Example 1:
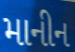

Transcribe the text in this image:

માનીન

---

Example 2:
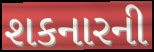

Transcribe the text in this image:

શકનારની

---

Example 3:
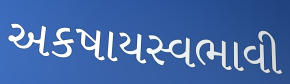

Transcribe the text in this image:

અકષાયસ્વભાવી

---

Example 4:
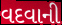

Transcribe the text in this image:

વદવાની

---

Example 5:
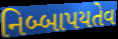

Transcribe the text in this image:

નિબ્બાપયતેવ